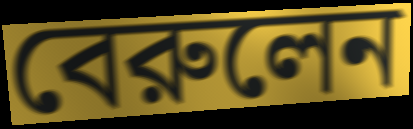
বেরুলেন